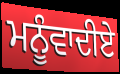
ਮਨੂੰਵਾਦੀਏ